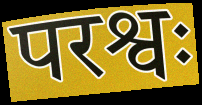
परश्वः